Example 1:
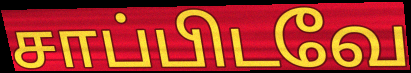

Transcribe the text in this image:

சாப்பிடவே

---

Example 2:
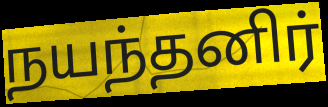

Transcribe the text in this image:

நயந்தனிர்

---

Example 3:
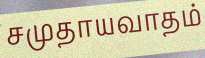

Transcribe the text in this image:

சமுதாயவாதம்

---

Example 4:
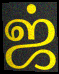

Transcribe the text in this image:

ஜ்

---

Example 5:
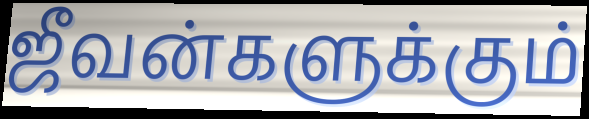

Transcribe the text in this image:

ஜீவன்களுக்கும்